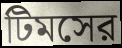
টিমসের